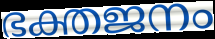
ഭക്തജനം